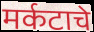
मर्कटाचे